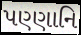
પણ્ણાનિ